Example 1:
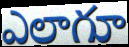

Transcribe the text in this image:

ఎలాగూ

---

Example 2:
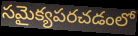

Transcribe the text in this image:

సమైక్యపరచడంలో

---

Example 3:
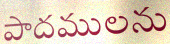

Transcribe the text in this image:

పాదములను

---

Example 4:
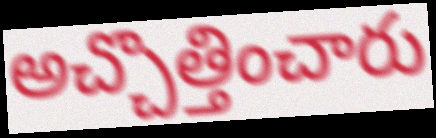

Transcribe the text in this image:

అచ్చొత్తించారు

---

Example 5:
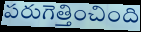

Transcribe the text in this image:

పరుగెత్తించింది